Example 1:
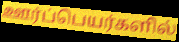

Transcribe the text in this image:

ஊர்ப்பெயர்களில்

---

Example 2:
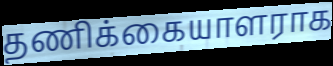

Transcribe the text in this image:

தணிக்கையாளராக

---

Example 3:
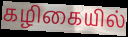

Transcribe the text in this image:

கழிகையில்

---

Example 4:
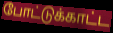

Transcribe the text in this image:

போட்டுக்காட்ட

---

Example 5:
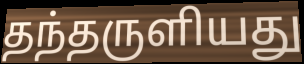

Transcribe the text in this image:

தந்தருளியது